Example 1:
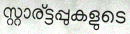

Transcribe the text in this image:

സ്റ്റാര്ട്ടപ്പുകളുടെ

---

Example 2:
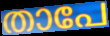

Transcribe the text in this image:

താപേ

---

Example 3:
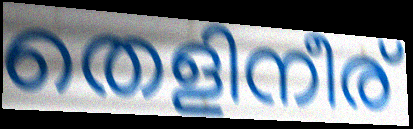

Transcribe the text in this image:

തെളിനീര്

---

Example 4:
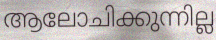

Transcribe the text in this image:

ആലോചിക്കുന്നില്ല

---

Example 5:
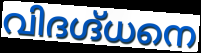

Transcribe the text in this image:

വിദഗ്ദ്ധനെ